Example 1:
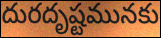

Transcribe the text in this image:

దురదృష్టమునకు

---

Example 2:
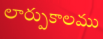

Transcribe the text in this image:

లార్పుకాలము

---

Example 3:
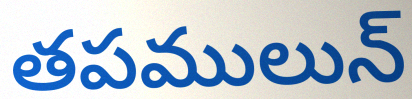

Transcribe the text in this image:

తపములున్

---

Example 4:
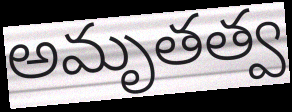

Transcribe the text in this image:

అమృతత్వ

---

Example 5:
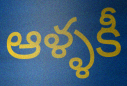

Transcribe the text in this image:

ఆళ్ళకీ